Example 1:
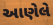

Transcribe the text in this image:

આણેલે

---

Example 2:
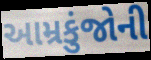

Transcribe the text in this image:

આમ્રકુંજોની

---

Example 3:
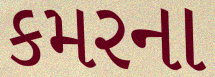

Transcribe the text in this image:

કમરના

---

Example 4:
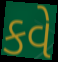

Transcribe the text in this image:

કવે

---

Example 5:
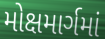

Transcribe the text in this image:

મોક્ષમાર્ગમાં